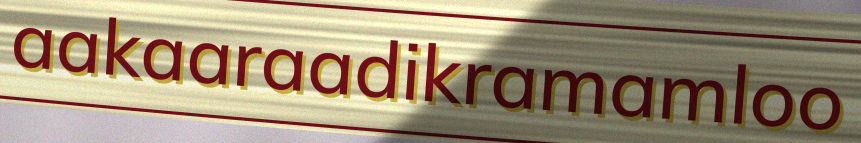
aakaaraadikramamloo